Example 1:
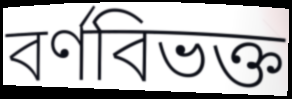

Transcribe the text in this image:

বর্ণবিভক্ত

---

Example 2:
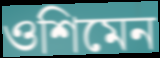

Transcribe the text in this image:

ওশিমেন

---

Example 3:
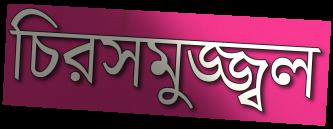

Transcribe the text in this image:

চিরসমুজ্জ্বল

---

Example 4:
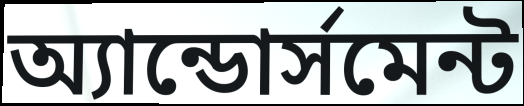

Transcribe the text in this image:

অ্যান্ডোর্সমেন্ট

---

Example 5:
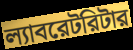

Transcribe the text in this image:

ল্যাবরেটরিটার